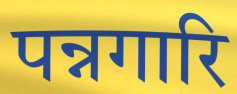
पन्नगारि